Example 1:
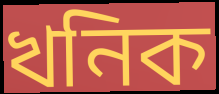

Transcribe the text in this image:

খনিক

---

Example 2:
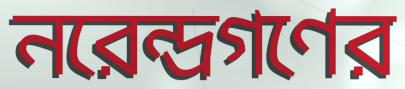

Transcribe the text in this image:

নরেন্দ্রগণের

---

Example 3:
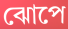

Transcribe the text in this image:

ঝোপে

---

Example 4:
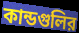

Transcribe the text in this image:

কান্ডগুলির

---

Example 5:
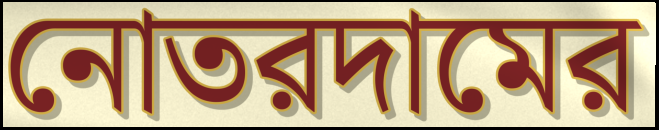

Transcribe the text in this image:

নোতরদামের